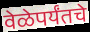
वेळेपर्यंतचे